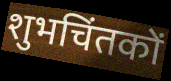
शुभचिंतकों